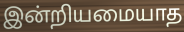
இன்றியமையாத